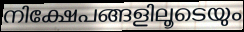
നിക്ഷേപങ്ങളിലൂടെയും